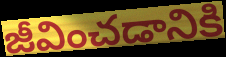
జీవించడానికి